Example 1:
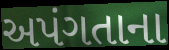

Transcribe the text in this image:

અપંગતાના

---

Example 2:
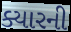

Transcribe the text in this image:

ક્યારની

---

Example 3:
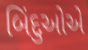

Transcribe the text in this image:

બિંદુઓએ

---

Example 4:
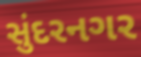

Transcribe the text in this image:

સુંદરનગર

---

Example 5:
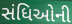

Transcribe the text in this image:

સંધિઓની